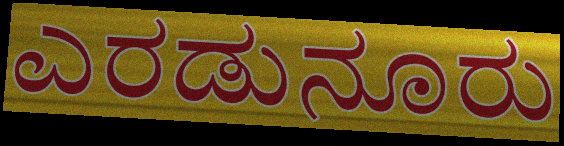
ಎರಡುನೂರು